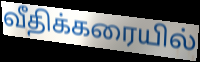
வீதிக்கரையில்